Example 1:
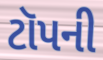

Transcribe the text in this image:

ટૉપની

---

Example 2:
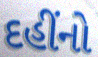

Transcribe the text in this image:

દહીંનો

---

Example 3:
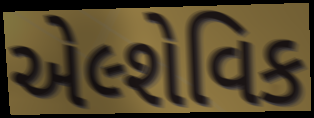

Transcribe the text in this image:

એલ્શેવિક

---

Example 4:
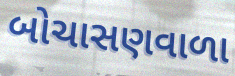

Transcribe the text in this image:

બોચાસણવાળા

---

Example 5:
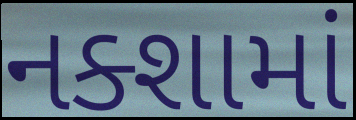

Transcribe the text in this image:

નક્શામાં